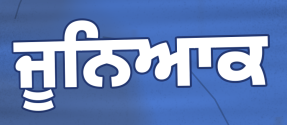
ਜੂਨਿਆਕ